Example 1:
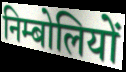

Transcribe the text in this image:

निम्बोलियों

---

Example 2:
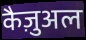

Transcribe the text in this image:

कैज़ुअल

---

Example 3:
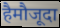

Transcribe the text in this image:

हैमौजूदा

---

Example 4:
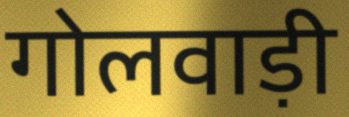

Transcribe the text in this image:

गोलवाड़ी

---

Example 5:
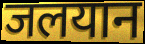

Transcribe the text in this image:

जलयान